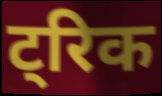
ट्रिक